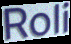
Roli